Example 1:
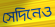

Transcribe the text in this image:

সেদিনেও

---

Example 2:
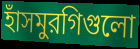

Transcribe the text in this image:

হাঁসমুরগিগুলো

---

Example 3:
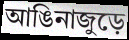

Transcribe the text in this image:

আঙিনাজুড়ে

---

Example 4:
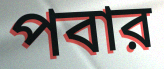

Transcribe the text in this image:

পবার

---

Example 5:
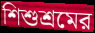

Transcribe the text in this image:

শিশুশ্রমের